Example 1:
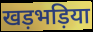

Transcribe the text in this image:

खड़भड़िया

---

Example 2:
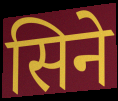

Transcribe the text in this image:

सिने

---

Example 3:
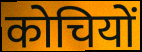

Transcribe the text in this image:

कोचियों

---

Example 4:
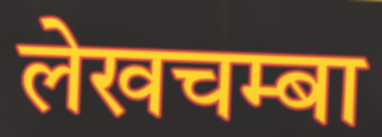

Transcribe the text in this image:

लेखचम्बा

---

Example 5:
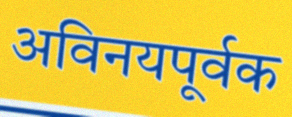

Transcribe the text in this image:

अविनयपूर्वक